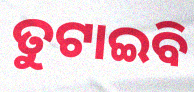
ତୁଟାଇବି